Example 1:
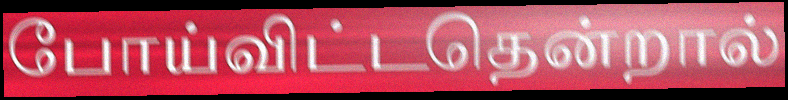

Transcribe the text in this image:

போய்விட்டதென்றால்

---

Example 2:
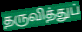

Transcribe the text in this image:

தருவித்துப்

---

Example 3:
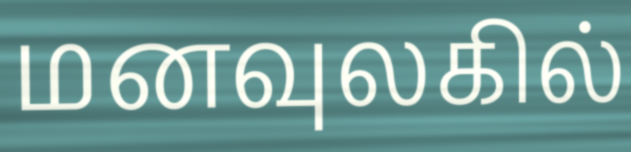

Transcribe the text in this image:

மனவுலகில்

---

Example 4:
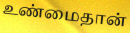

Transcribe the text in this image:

உண்மைதான்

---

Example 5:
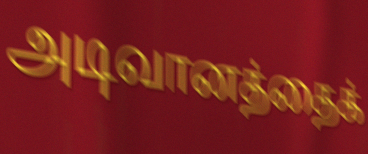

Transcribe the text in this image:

அடிவானத்தைக்